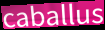
caballus